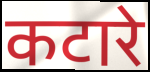
कटारे